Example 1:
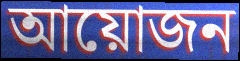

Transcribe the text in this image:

আয়োজন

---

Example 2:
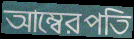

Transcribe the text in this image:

আম্বেরপতি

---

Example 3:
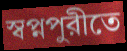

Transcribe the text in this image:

স্বপ্নপুরীতে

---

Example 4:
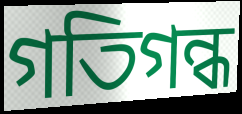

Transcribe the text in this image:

গতিগন্ধ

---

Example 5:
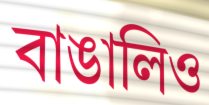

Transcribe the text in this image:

বাঙালিও